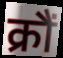
क्रौं